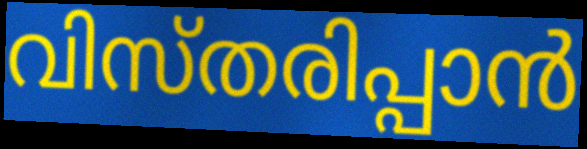
വിസ്തരിപ്പാൻ